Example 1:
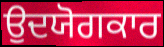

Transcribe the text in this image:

ਉਦਯੋਗਕਾਰ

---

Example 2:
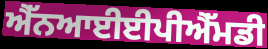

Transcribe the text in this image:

ਐੱਨਆਈਈਪੀਐੱਮਡੀ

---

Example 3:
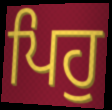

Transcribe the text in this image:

ਪਿਹੁ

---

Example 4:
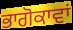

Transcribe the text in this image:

ਭਾਗੋਕਾਵਾਂ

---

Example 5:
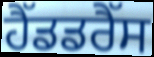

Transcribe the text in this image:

ਹੈੱਡਡਰੈੱਸ